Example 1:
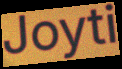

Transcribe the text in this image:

Joyti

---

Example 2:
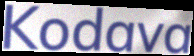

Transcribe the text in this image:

Kodava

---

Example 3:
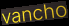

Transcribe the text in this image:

vancho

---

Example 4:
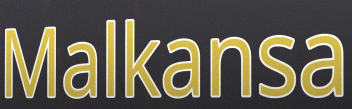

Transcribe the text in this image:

Malkansa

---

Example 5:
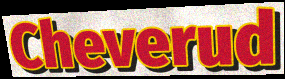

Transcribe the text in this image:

Cheverud